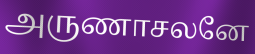
அருணாசலனே